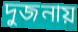
দুজনায়